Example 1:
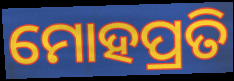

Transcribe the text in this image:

ମୋହପ୍ରତି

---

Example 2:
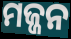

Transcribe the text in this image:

ମଜ୍ଜନ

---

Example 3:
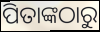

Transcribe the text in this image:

ପିତାଙ୍କଠାରୁ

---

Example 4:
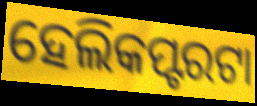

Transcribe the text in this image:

ହେଲିକପ୍ଟରଟା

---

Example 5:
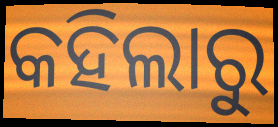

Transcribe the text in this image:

କହିଲାରୁ